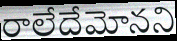
రాలేదేమోనని